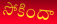
సోకిందా